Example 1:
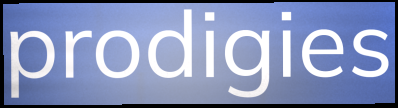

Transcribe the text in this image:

prodigies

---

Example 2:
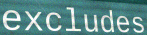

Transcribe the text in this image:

excludes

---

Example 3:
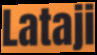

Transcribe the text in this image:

Lataji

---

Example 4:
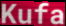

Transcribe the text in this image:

Kufa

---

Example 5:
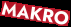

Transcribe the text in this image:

MAKRO